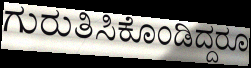
ಗುರುತಿಸಿಕೊಂಡಿದ್ದರೂ